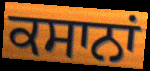
ਕਸਾਨਾਂ